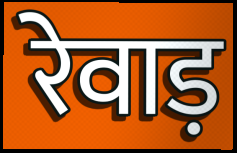
रेवाड़